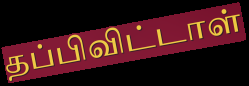
தப்பிவிட்டாள்